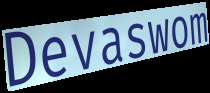
Devaswom